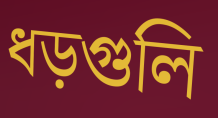
ধড়গুলি